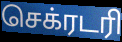
செக்ரடரி